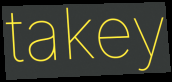
takey